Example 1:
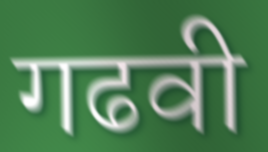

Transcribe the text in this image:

गढवी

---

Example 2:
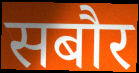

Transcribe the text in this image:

सबौर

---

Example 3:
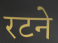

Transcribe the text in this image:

रटने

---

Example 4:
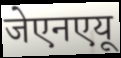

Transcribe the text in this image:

जेएनएयू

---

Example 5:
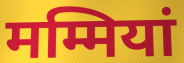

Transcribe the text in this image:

मम्मियां